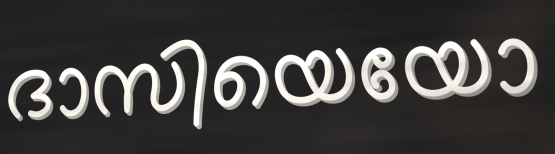
ദാസിയെയോ